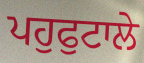
ਪਹੁਫੁਟਾਲੇ